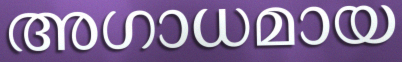
അഗാധമായ